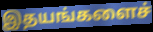
இதயங்களைச்